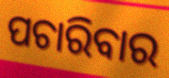
ପଚାରିବାର